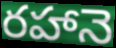
రహానె